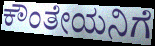
ಕೌಂತೇಯನಿಗೆ